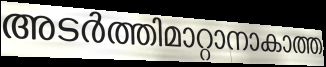
അടർത്തിമാറ്റാനാകാത്ത